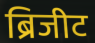
ब्रिजीट